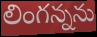
లింగన్నను